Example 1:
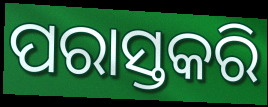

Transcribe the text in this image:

ପରାସ୍ତକରି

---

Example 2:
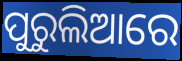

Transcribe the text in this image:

ପୁରୁଲିଆରେ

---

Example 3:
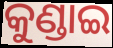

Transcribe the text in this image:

କୁଣ୍ଡାଇ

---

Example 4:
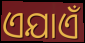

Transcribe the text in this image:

ଏଯାଏଁ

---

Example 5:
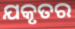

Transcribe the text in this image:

ଯକୃତର